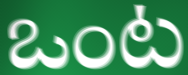
ఒంట